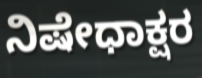
ನಿಷೇಧಾಕ್ಷರ